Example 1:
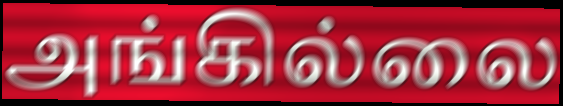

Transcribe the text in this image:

அங்கில்லை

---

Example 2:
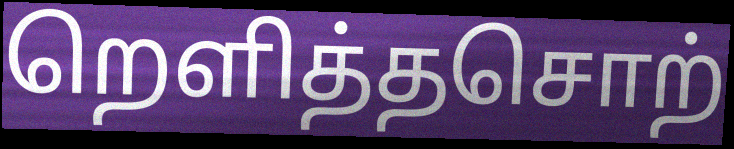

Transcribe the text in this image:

றெளித்தசொற்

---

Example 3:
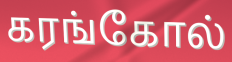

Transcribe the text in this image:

கரங்கோல்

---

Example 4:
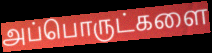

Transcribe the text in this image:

அப்பொருட்களை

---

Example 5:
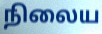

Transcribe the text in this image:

நிலைய